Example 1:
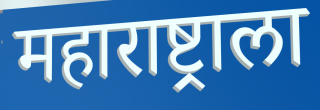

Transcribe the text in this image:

महाराष्ट्राला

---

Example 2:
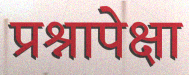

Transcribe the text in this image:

प्रश्नापेक्षा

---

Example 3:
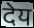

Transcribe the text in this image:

देय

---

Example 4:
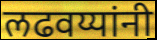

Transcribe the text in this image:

लढवय्यांनी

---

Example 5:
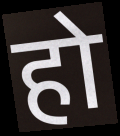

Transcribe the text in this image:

हो